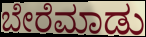
ಬೇರೆಮಾಡು